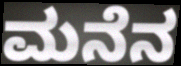
ಮನೆನ